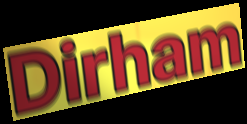
Dirham